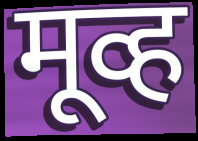
मूव्ह